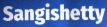
Sangishetty